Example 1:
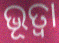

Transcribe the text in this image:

ଭୂତ୍ୱା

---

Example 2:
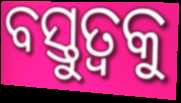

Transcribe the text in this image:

ବସ୍ତୁତ୍ଵକୁ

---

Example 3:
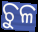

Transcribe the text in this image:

ଚୁଳ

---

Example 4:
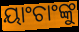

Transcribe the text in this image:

ୟାଂଚାଂଙ୍କୁ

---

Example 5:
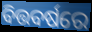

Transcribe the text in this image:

ବିତ୍ତବର୍ଷରେ